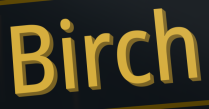
Birch